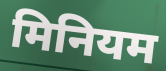
मिनियम